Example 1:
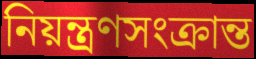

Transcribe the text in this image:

নিয়ন্ত্রণসংক্রান্ত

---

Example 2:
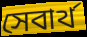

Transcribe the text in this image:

সেবার্থ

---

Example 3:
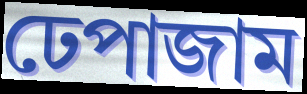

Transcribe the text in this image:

ঢেপাজাম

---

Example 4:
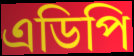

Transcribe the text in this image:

এডিপি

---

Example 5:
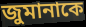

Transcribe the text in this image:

জুমানাকে